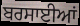
ਬਰਸਾਈਆਂ